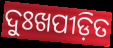
ଦୁଃଖପୀଡ଼ିତ